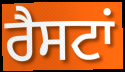
ਰੈਸਟਾਂ